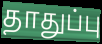
தாதுப்பு